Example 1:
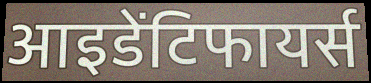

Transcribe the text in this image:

आइडेंटिफायर्स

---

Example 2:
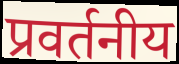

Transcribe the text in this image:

प्रवर्तनीय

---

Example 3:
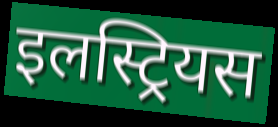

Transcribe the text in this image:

इलस्ट्रियस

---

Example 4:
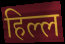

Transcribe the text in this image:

हिल्ल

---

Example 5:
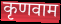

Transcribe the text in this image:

कृणवाम